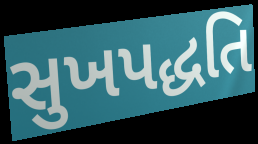
સુખપદ્ધતિ